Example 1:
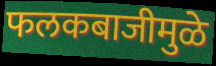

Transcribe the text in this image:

फलकबाजीमुळे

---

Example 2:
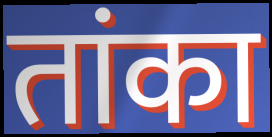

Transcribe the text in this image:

तांका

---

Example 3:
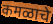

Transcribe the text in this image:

कमळाचे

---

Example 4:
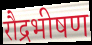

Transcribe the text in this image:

रौद्रभीषण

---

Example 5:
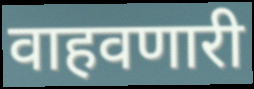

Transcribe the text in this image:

वाहवणारी